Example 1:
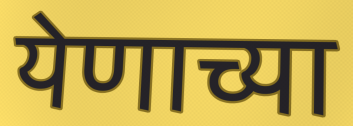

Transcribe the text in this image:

येणाच्या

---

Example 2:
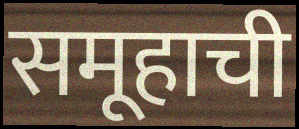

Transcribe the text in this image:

समूहाची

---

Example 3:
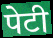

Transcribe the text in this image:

पेटी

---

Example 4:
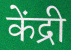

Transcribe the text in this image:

केंद्री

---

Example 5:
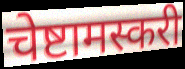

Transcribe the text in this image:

चेष्टामस्करी